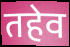
तहेव